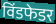
विंडफेडर